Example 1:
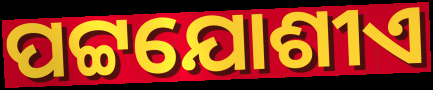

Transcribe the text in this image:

ପଟ୍ଟଯୋଶୀଏ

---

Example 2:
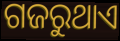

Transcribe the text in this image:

ଗଜରୁଥାଏ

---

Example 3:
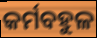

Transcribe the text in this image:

କର୍ମବହୁଳ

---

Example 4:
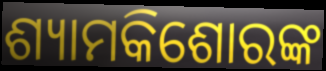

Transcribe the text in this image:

ଶ୍ୟାମକିଶୋରଙ୍କ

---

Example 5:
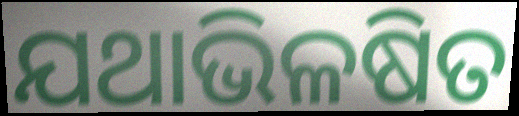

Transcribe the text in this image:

ଯଥାଭିଳଷିତ